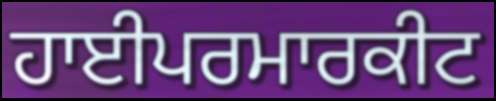
ਹਾਈਪਰਮਾਰਕੀਟ